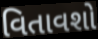
વિતાવશો